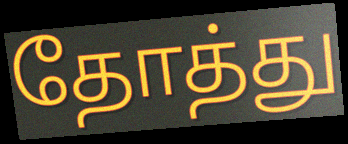
தோத்து